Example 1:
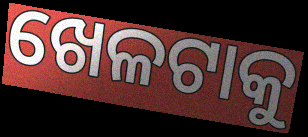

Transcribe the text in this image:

ଖେଳଟାକୁ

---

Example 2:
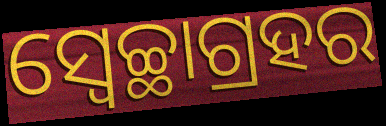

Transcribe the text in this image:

ସ୍ବେଚ୍ଛାଗ୍ରହର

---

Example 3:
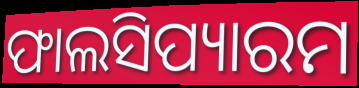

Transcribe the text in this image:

ଫାଲସିପ୍ୟାରମ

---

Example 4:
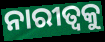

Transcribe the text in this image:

ନାରୀତ୍ୱକୁ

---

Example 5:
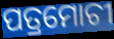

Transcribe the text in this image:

ପତ୍ରମୋଚୀ